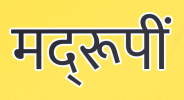
मद्‌रूपीं